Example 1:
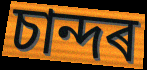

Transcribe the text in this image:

চান্দৰ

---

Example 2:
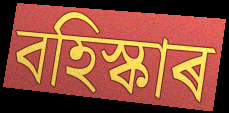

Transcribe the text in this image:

বহিস্কাৰ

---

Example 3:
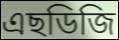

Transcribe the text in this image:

এছডিজি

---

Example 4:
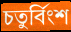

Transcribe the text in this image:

চতুৰ্বিংশ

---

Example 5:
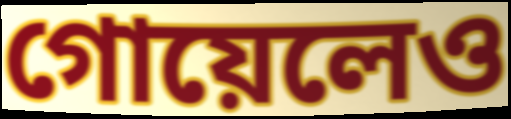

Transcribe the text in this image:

গোয়েলেও